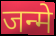
जन्मे